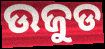
ଉଜୁଡ